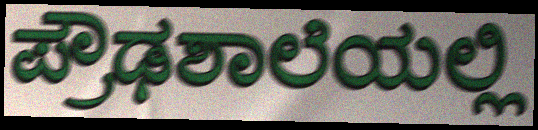
ಪ್ರೌಢಶಾಲೆಯಲ್ಲಿ